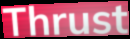
Thrust